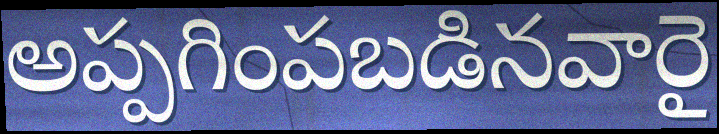
అప్పగింపబడినవారై